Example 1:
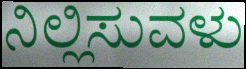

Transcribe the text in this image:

ನಿಲ್ಲಿಸುವಳು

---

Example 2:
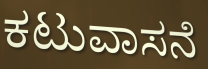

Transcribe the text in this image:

ಕಟುವಾಸನೆ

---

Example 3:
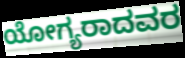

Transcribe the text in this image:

ಯೋಗ್ಯರಾದವರ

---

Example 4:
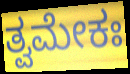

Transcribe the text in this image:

ತ್ವಮೇಕಃ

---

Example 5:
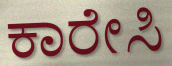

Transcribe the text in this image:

ಕಾರೇಸಿ